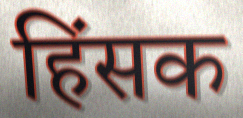
हिंसक